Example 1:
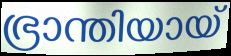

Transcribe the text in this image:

ഭ്രാന്തിയായ്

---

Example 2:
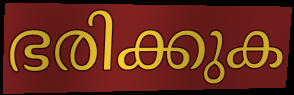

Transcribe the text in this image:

ഭരിക്കുക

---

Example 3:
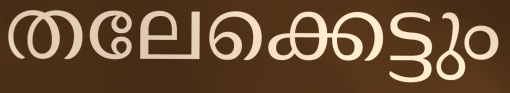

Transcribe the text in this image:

തലേക്കെട്ടും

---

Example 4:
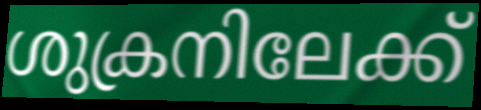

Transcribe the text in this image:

ശുക്രനിലേക്ക്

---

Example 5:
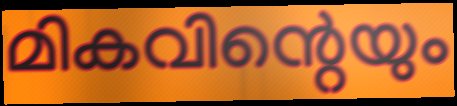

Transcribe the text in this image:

മികവിന്റെയും